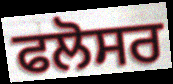
ਫਲੋਸਰ